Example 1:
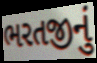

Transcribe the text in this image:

ભરતજીનું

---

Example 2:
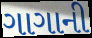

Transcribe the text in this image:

ગાગાની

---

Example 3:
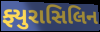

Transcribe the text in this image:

ફ્યુરાસિલિન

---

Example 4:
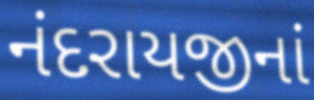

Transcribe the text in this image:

નંદરાયજીનાં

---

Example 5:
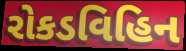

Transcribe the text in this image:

રોકડવિહિન